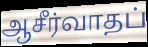
ஆசீர்வாதப்